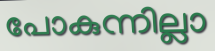
പോകുന്നില്ലാ